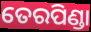
ତେରପିଣ୍ଡା